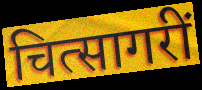
चित्सागरीं